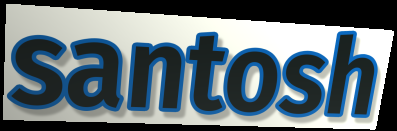
santosh